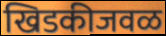
खिडकीजवळ